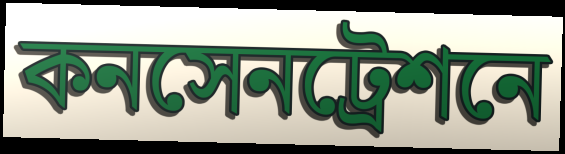
কনসেনট্রেশনে